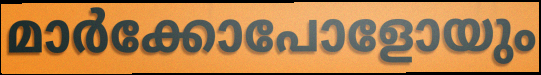
മാർക്കോപോളോയും